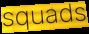
squads